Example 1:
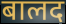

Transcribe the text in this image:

बालद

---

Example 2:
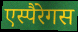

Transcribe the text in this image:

एस्पैरेगस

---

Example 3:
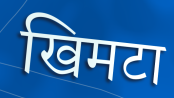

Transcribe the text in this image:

खिमटा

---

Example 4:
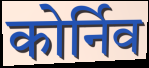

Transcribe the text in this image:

कोर्निव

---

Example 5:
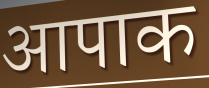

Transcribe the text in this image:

आपाक